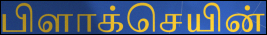
பிளாக்செயின்